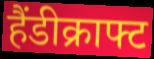
हैंडीक्राफ्ट